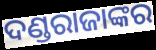
ଦଣ୍ଡରାଜାଙ୍କର